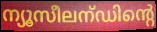
ന്യൂസീലന്ഡിന്റെ